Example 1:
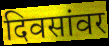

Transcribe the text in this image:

दिवसांवर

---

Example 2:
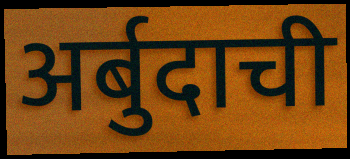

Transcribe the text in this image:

अर्बुदाची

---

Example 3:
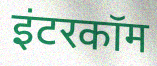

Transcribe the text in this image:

इंटरकॉम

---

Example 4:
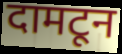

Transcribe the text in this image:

दामटून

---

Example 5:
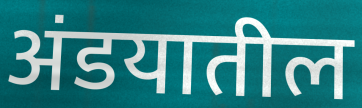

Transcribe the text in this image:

अंडयातील